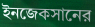
ইনজেকসানের